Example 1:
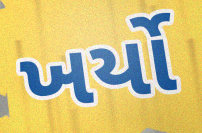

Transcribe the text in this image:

ખર્યો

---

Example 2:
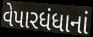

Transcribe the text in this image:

વેપારધંધાનાં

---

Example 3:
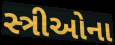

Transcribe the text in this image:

સ્ત્રીઓના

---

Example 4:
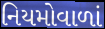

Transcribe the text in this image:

નિયમોવાળાં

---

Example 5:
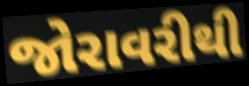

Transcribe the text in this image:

જોરાવરીથી